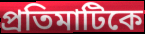
প্রতিমাটিকে